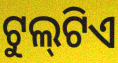
ଟୁଲ୍‍ଟିଏ